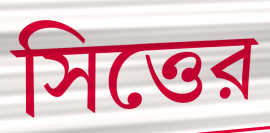
সিত্তের